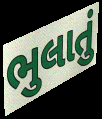
ભુલાતું